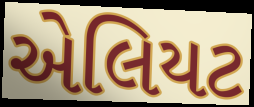
એલિયટ